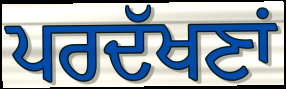
ਪਰਦੱਖਣਾਂ